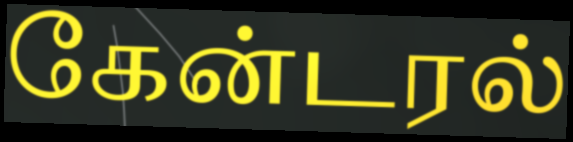
கேன்டரல்